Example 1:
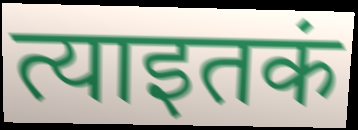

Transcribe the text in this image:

त्याइतकं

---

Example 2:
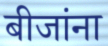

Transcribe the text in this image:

बीजांना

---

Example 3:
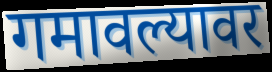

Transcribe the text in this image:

गमावल्यावर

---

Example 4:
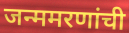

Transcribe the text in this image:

जन्ममरणांची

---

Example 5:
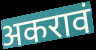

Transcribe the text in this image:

अकरावं